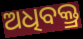
ଅଧିବକ୍ତ୍ର